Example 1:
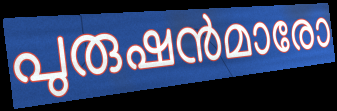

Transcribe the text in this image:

പുരുഷൻമാരോ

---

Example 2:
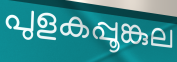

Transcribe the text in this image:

പുളകപ്പൂങ്കുല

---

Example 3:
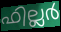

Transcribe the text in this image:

ഫില്ലർ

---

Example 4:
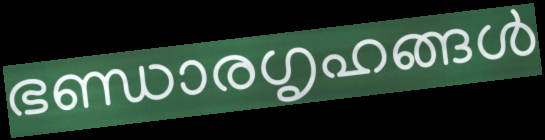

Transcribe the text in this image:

ഭണ്ഡാരഗൃഹങ്ങൾ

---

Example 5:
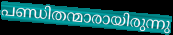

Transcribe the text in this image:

പണ്ഡിതന്മാരായിരുന്നു